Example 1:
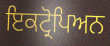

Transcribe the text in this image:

ਇਕਟ੍ਰੋਪਿਅਨ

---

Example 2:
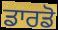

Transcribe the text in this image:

ਡਾਰਡੋ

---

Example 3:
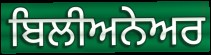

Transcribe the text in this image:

ਬਿਲੀਅਨੇਅਰ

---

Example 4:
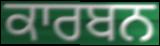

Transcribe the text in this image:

ਕਾਰਬਨ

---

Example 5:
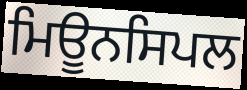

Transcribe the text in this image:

ਮਿਊਨਸਿਪਲ